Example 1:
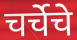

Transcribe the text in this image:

चर्चेचे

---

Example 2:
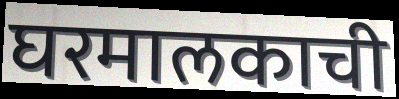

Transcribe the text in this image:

घरमालकाची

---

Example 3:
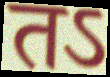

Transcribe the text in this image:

तऽ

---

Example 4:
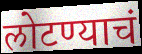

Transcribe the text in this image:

लोटण्याचं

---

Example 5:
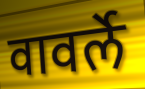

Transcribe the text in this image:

वावर्ले